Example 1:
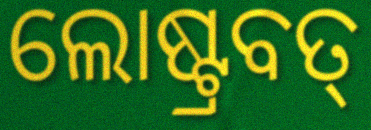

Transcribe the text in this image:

ଲୋଷ୍ଟ୍ରବତ୍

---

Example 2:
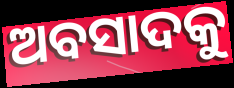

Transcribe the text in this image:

ଅବସାଦକୁ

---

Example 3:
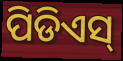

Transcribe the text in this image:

ପିଡିଏସ୍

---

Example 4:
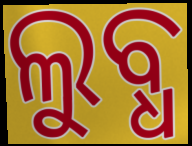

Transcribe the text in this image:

ଲୁବ୍ଧ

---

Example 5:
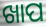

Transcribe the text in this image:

ଖାପ